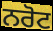
ਨਰੋਟ